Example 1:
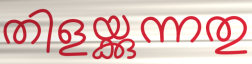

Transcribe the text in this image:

തിളയ്ക്കുന്നതു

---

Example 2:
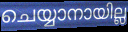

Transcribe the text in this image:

ചെയ്യാനായില്ല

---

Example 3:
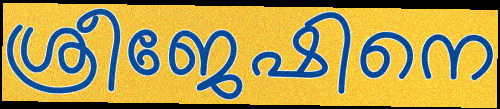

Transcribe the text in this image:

ശ്രീജേഷിനെ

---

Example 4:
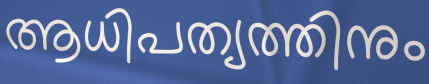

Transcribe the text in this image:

ആധിപത്യത്തിനും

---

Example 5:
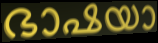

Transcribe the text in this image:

ഭാഷയാ